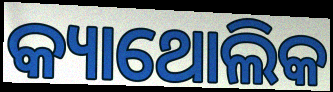
କ୍ୟାଥୋଲିକ